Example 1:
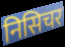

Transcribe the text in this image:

निसिचर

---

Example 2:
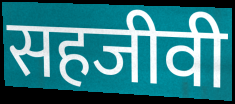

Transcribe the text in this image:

सहजीवी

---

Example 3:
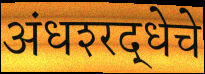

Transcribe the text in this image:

अंधश्रद्धेचे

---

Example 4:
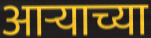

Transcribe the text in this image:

आऱ्याच्या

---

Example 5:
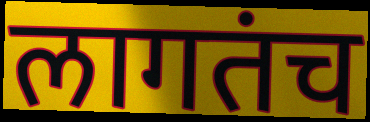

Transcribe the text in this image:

लागतंच